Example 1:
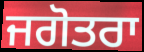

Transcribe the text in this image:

ਜਗੋਤਰਾ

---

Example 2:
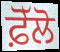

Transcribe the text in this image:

ਫ਼ੋੱਲੋ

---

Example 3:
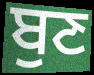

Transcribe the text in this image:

ਬੁਣ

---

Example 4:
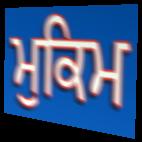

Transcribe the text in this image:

ਮੁਕਿਮ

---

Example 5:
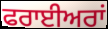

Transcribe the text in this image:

ਫਰਾਈਅਰਾਂ